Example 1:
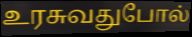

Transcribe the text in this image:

உரசுவதுபோல்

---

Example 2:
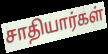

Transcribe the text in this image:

சாதியார்கள்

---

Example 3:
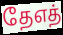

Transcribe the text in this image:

தேஎத்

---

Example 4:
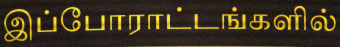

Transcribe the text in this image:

இப்போராட்டங்களில்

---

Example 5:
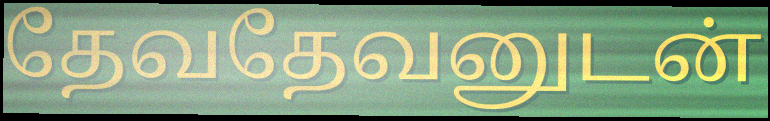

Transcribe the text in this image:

தேவதேவனுடன்